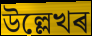
উল্লেখৰ